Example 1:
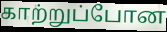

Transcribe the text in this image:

காற்றுப்போன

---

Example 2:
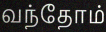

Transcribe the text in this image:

வந்தோம்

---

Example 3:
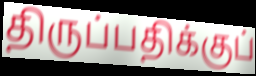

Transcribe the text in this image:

திருப்பதிக்குப்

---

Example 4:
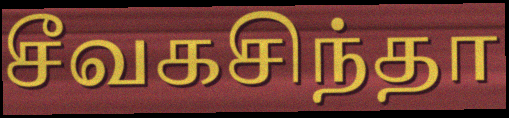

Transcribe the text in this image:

சீவகசிந்தா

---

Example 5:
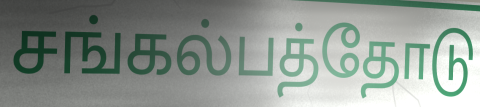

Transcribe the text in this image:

சங்கல்பத்தோடு